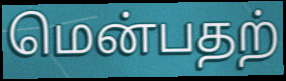
மென்பதற்